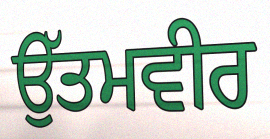
ਉੱਤਮਵੀਰ